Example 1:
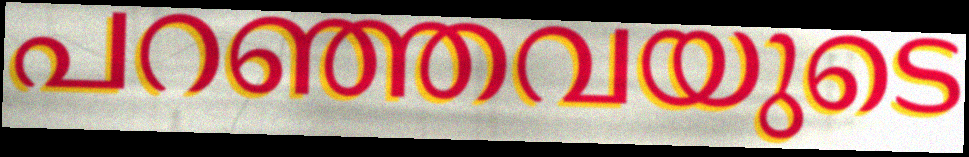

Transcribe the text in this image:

പറഞ്ഞവയുടെ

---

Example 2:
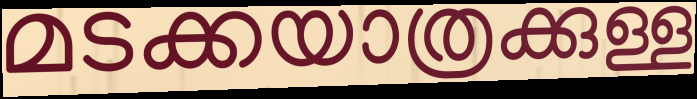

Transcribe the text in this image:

മടക്കയാത്രക്കുള്ള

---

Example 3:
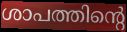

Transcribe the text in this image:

ശാപത്തിന്റെ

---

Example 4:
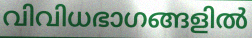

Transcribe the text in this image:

വിവിധഭാഗങ്ങളിൽ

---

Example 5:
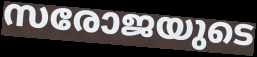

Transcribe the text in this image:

സരോജയുടെ